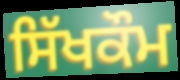
ਸਿੱਖਕੌਮ